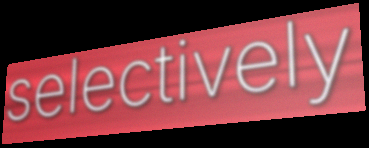
selectively